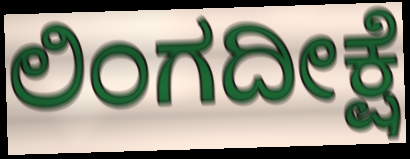
ಲಿಂಗದೀಕ್ಷೆ